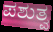
ಪಶುತ್ವ